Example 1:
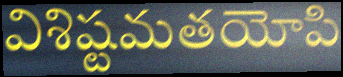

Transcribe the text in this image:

విశిష్టమతయోపి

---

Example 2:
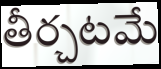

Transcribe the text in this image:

తీర్చటమే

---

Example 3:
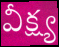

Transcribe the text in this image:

వీక్ష్య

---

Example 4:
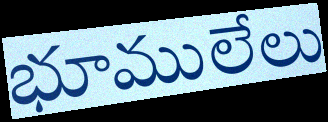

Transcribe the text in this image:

భూములేలు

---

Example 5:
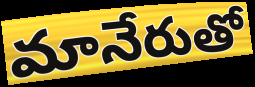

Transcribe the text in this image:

మానేరుతో